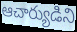
ఆచార్యుడిని